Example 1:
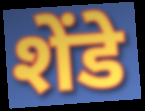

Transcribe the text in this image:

शेंडे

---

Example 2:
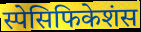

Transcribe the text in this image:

स्पेसिफिकेशंस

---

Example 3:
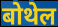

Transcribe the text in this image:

बोथेल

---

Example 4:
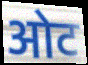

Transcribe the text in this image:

ओट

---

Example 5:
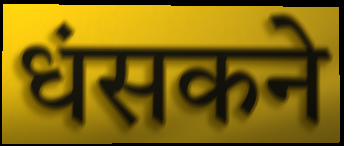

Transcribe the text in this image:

धंसकने